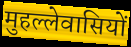
मुहल्लेवासियों